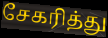
சேகரித்து